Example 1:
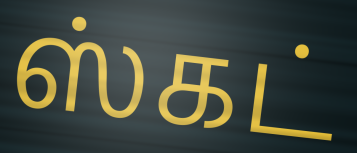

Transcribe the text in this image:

ஸ்கட்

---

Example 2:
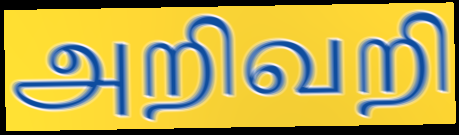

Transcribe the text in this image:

அறிவறி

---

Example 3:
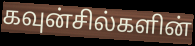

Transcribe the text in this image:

கவுன்சில்களின்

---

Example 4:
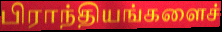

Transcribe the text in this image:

பிராந்தியங்களைச்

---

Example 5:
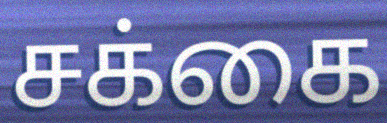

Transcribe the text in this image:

சக்கை